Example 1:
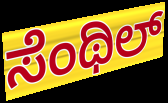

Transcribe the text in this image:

ಸೆಂಥಿಲ್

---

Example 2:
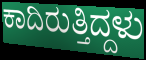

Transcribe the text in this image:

ಕಾದಿರುತ್ತಿದ್ದಳು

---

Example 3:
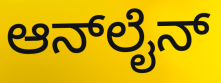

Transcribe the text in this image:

ಆನ್‌ಲೈನ್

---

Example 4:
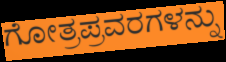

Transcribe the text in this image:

ಗೋತ್ರಪ್ರವರಗಳನ್ನು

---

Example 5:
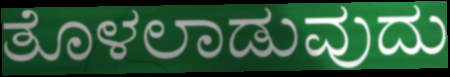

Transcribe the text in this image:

ತೊಳಲಾಡುವುದು